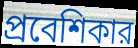
প্রবেশিকার